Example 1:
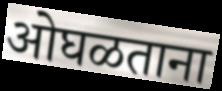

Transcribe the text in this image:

ओघळताना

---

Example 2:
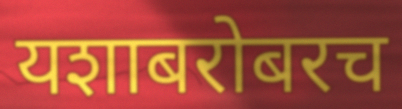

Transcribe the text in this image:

यशाबरोबरच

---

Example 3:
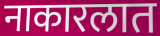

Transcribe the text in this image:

नाकारलात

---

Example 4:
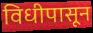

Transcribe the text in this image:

विधीपासून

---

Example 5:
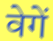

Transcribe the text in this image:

वेगें